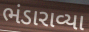
ભંડારાવ્યા